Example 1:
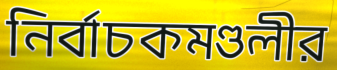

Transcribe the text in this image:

নির্বাচকমণ্ডলীর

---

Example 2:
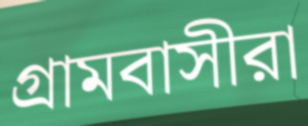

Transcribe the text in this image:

গ্রামবাসীরা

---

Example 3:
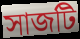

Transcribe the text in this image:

সাজটি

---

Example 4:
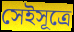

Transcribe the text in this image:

সেইসূত্রে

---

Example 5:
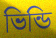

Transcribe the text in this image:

ভিন্ডি